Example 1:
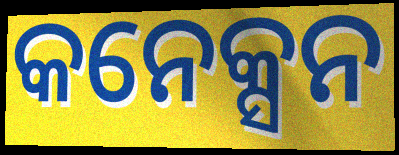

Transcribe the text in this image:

କନେକ୍ସନ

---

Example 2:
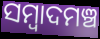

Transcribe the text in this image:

ସମ୍ୱାଦମଞ୍ଚ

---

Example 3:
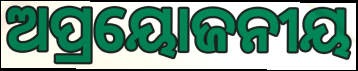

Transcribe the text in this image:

ଅପ୍ରୟୋଜନୀୟ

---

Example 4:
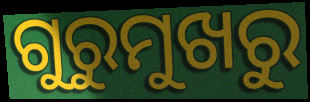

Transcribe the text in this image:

ଗୁରୁମୁଖରୁ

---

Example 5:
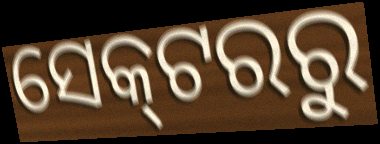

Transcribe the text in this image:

ସେକ୍‌ଟରରୁ